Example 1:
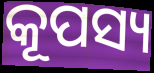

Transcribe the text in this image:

କୂପସ୍ୟ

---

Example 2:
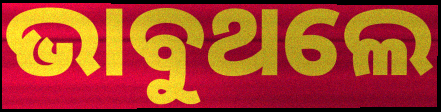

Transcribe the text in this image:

ଭାବୁଥଲେ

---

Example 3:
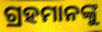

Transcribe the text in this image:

ଗ୍ରହମାନଙ୍କୁ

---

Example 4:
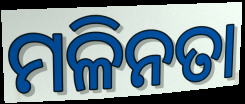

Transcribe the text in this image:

ମଳିନତା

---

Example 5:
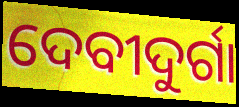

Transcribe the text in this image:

ଦେବୀଦୁର୍ଗା